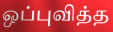
ஒப்புவித்த